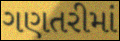
ગણતરીમાં